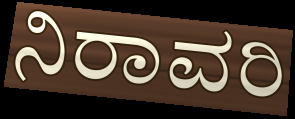
ನಿರಾವರಿ